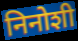
निनोशी